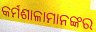
କର୍ମଶାଳାମାନଙ୍କର